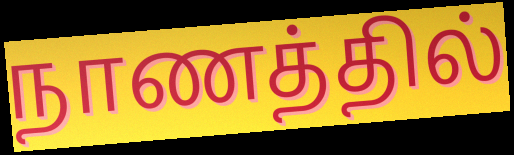
நாணத்தில்